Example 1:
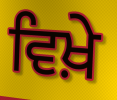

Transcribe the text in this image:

ਵਿਖ਼ੇ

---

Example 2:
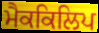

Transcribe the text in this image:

ਮੈਕਕਿਲਿਪ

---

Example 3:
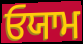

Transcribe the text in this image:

ਓਯਾਮ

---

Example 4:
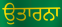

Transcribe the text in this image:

ਉਤਾਰਨਾ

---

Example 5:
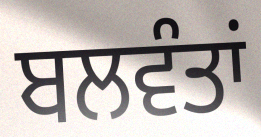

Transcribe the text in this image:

ਬਲਵੰਤਾਂ